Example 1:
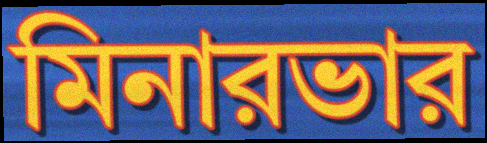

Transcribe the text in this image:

মিনারভার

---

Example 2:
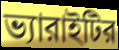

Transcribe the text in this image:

ভ্যারাইটির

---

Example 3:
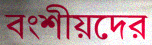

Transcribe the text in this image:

বংশীয়দের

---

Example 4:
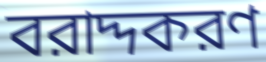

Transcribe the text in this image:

বরাদ্দকরণ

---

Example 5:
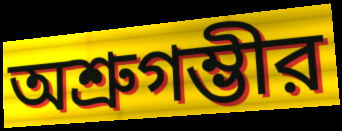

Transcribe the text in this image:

অশ্রুগম্ভীর